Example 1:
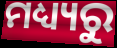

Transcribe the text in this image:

ମଧ୍ୟ୍ୟରୁ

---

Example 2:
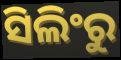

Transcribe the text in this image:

ସିଲିଂରୁ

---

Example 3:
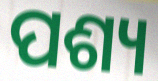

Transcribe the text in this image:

ପଶ୍ୟ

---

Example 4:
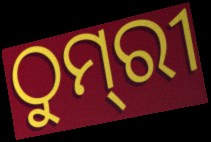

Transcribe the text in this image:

ଠୁମ୍‌ରୀ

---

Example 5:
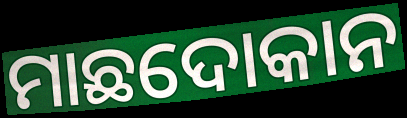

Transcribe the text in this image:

ମାଛଦୋକାନ